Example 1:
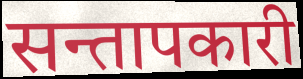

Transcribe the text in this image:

सन्तापकारी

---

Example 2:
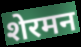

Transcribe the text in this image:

शेरमन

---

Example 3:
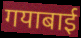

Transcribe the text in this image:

गयाबाई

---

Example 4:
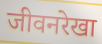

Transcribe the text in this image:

जीवनरेखा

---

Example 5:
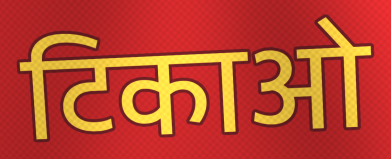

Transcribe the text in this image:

टिकाओ